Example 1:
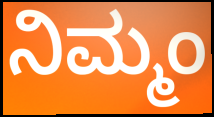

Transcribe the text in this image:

ನಿಮ್ಮಂ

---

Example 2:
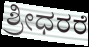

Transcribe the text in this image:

ಶ್ರೀಧರರೆ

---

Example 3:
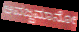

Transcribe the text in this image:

ಆವಜ್ಜಮಾನೋ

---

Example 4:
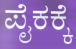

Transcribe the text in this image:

ಪೈಕಕ್ಕೆ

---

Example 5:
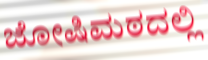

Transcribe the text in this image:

ಜೋಷಿಮಠದಲ್ಲಿ